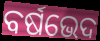
ବର୍ଷଭେଦ